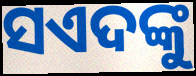
ସଏଦଙ୍କୁ